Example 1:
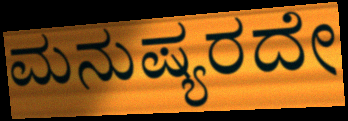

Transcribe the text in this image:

ಮನುಷ್ಯರದೇ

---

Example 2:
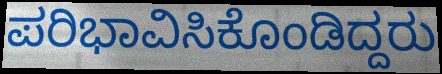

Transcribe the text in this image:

ಪರಿಭಾವಿಸಿಕೊಂಡಿದ್ದರು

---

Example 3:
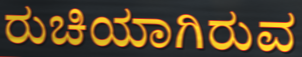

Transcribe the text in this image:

ರುಚಿಯಾಗಿರುವ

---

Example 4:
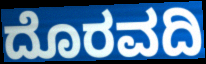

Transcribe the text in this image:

ದೊರವದಿ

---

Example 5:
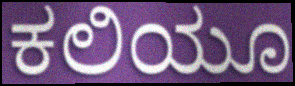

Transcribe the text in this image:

ಕಲಿಯೂ